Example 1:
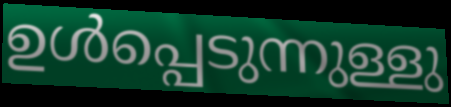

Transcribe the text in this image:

ഉൾപ്പെടുന്നുള്ളു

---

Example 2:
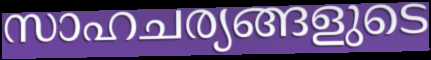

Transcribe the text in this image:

സാഹചര്യങ്ങളുടെ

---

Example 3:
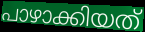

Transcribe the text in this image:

പാഴാക്കിയത്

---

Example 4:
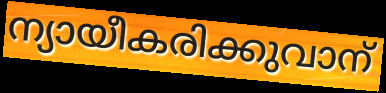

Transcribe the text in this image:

ന്യായീകരിക്കുവാന്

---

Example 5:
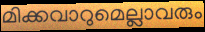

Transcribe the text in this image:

മിക്കവാറുമെല്ലാവരും